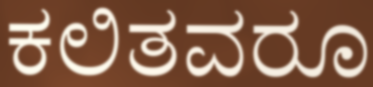
ಕಲಿತವರೂ